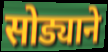
सोड्याने